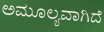
ಅಮೂಲ್ಯವಾಗಿದೆ